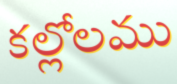
కల్లోలము